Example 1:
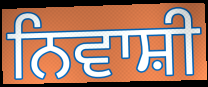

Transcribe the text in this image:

ਨਿਵਾਸ਼ੀ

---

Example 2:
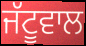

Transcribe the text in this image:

ਜੱਟੂਵਾਲ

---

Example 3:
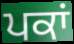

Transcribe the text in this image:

ਪਕਾਂ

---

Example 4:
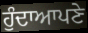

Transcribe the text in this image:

ਹੁੰਦਾਆਪਣੇ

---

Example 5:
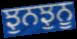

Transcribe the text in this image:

ਝੁਨਝੁਨੂ